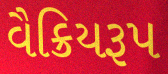
વૈક્રિયરૂપ